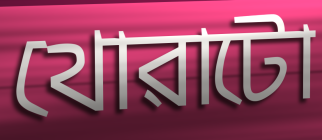
থোৱাটো